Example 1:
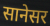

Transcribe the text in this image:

सानेसर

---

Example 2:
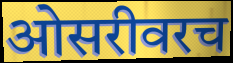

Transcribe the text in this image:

ओसरीवरच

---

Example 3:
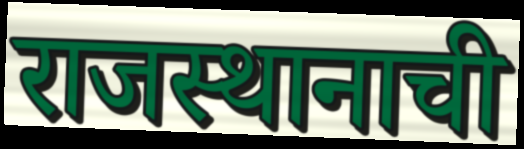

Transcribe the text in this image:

राजस्थानाची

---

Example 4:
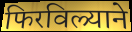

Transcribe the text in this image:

फिरविल्याने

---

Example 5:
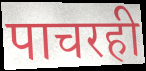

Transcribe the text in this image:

पाचरही